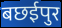
बछईपुर